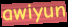
awiyun